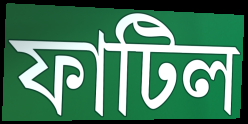
ফাটিল